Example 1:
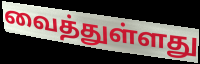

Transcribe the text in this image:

வைத்துள்ளது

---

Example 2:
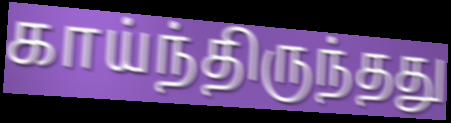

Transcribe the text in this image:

காய்ந்திருந்தது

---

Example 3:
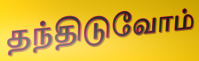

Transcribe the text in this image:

தந்திடுவோம்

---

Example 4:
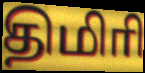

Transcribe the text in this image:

திமிரி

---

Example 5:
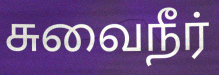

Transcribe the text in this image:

சுவைநீர்